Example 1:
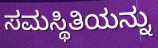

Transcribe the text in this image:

ಸಮಸ್ಥಿತಿಯನ್ನು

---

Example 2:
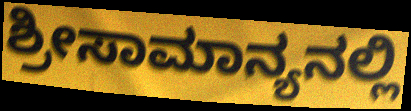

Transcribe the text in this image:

ಶ್ರೀಸಾಮಾನ್ಯನಲ್ಲಿ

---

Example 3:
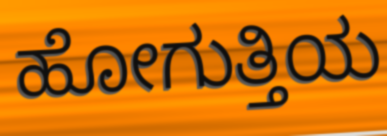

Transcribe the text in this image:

ಹೋಗುತ್ತಿಯ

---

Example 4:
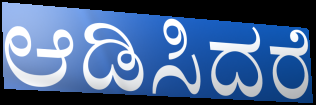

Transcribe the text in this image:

ಆಡಿಸಿದರೆ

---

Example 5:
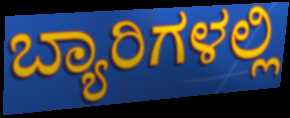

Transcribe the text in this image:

ಬ್ಯಾರಿಗಳಲ್ಲಿ